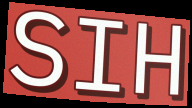
SIH